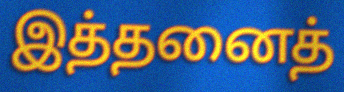
இத்தனைத்